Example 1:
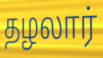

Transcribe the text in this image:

தழலார்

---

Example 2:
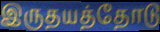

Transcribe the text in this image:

இருதயத்தோடு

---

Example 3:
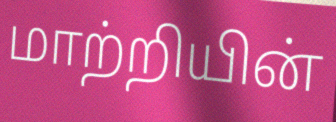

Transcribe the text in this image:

மாற்றியின்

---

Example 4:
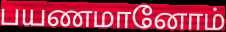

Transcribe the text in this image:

பயணமானோம்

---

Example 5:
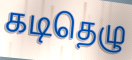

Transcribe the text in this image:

கடிதெழு